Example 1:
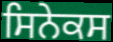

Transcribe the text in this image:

ਸਿਨੇਕਸ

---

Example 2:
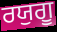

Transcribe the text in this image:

ਰਯੁਗੂ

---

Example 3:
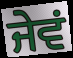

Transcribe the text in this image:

ਜੇਵਂ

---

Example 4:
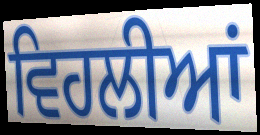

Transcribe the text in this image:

ਵਿਹਲੀਆਂ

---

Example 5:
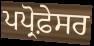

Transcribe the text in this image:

ਪਪ੍ਰੋਫ਼ੇਸਰ